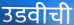
उडवीची